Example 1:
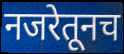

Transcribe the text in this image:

नजरेतूनच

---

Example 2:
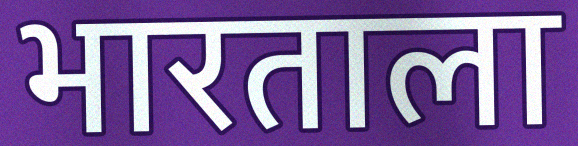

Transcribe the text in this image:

भारताला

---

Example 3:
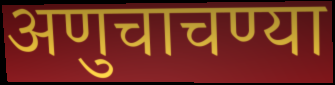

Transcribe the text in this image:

अणुचाचण्या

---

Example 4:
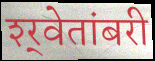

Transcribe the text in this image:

श्र्वेतांबरी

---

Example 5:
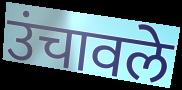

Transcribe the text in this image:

उंचावले